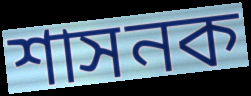
শাসনক